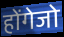
होंगेजो